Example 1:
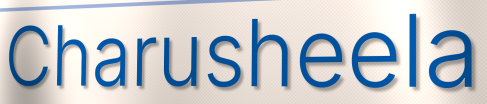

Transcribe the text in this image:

Charusheela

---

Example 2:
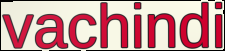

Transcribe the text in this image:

vachindi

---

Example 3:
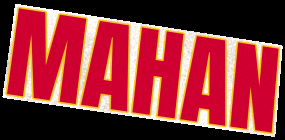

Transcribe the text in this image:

MAHAN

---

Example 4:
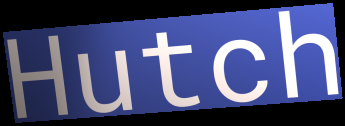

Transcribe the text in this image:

Hutch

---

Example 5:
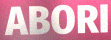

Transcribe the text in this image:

ABORI